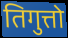
तिगुत्तो